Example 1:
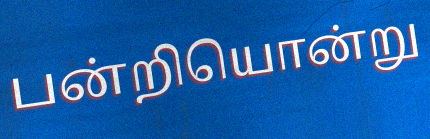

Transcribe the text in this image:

பன்றியொன்று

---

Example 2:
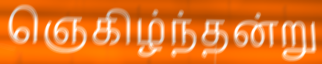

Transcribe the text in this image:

ஞெகிழ்ந்தன்று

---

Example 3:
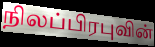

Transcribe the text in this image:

நிலப்பிரபுவின்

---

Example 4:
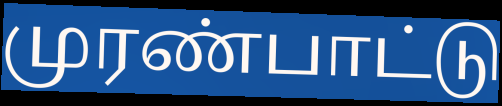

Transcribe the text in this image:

முரண்பாட்டு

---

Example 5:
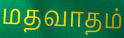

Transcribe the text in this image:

மதவாதம்